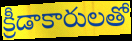
క్రీడాకారులతో